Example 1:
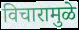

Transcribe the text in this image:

विचारामुळे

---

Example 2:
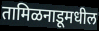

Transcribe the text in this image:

तामिळनाडूमधील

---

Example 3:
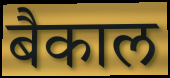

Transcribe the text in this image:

बैकाल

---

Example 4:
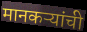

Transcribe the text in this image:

मानकऱ्यांची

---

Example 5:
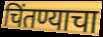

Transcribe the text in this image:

चिंतण्याचा